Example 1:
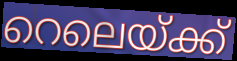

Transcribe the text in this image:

റെലെയ്ക്ക്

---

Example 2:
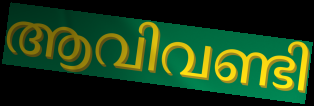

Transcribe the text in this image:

ആവിവണ്ടി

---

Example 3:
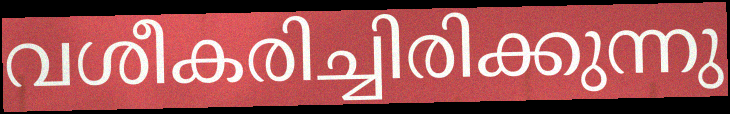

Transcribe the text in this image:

വശീകരിച്ചിരിക്കുന്നു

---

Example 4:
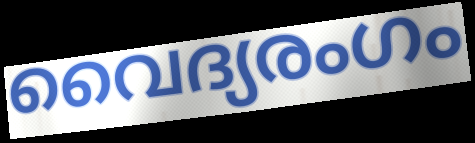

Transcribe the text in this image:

വൈദ്യരംഗം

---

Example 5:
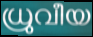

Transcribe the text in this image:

ധ്രുവീയ